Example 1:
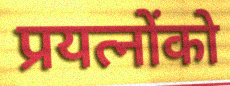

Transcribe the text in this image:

प्रयत्नोंको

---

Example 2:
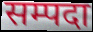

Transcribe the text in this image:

सम्पदा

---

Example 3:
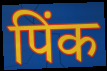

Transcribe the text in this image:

पिंक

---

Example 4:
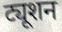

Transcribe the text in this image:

ट्यूशन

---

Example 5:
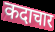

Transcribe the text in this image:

कदाचार